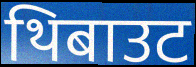
थिबाउट